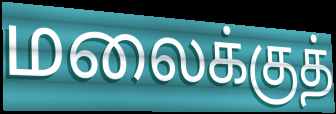
மலைக்குத்